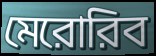
মেরোরিব